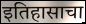
इतिहासाचा